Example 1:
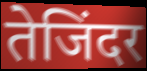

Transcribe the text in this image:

तेजिंदर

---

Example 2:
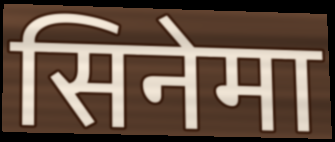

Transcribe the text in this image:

सिनेमा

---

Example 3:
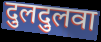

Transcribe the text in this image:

दुलदुलवा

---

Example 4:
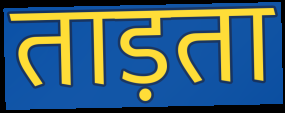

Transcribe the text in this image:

ताड़ता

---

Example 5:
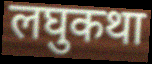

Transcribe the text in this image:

लघुकथा